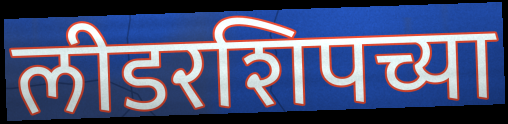
लीडरशिपच्या